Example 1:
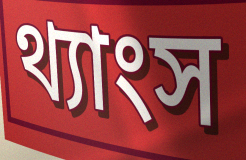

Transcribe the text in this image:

থ্যাংস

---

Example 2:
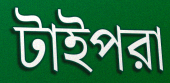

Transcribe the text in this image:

টাইপরা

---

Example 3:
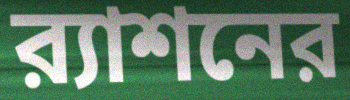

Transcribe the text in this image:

র‍্যাশনের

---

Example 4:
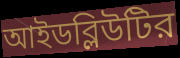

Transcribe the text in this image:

আইডব্লিউটির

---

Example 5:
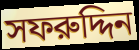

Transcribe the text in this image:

সফরুদ্দিন